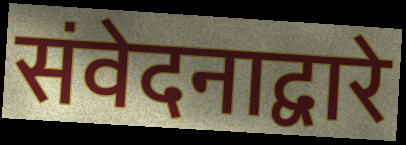
संवेदनाद्वारे